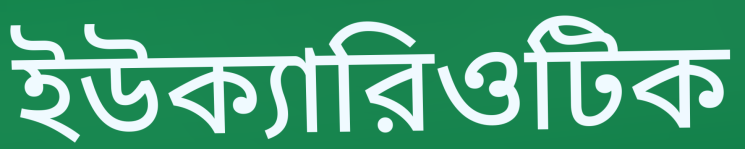
ইউক্যারিওটিক